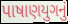
પાષાણયુગનું